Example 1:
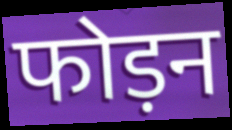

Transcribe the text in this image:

फोड़न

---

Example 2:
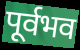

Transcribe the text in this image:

पूर्वभव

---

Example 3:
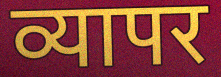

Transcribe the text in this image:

व्यापर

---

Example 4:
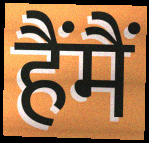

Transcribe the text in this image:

हैंमैं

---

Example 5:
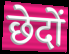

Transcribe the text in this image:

छेदों